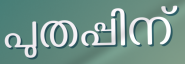
പുതപ്പിന്